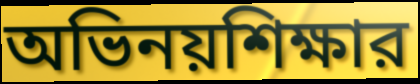
অভিনয়শিক্ষার